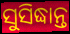
ସୁସିଦ୍ଧାନ୍ତ